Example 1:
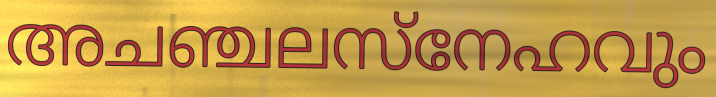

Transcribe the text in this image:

അചഞ്ചലസ്നേഹവും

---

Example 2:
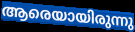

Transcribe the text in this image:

ആരെയായിരുന്നു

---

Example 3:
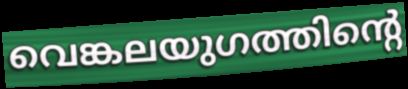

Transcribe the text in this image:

വെങ്കലയുഗത്തിന്റെ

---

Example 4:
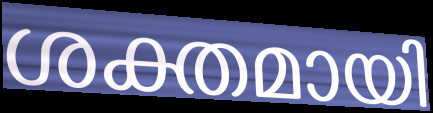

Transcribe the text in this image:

ശക്തമായി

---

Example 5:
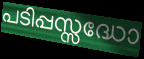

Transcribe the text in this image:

പടിപ്പസ്സദ്ധോ